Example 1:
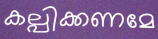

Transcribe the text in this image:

കല്പിക്കണമേ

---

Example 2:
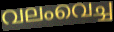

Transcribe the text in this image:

വലംവെച്ച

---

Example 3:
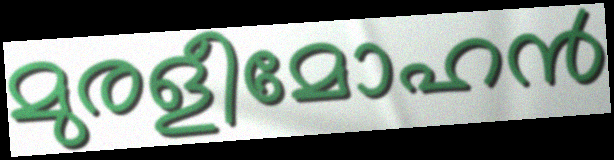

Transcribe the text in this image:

മുരളീമോഹൻ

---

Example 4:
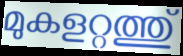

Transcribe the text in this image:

മുകളറ്റത്തു്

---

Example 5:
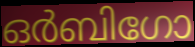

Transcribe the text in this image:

ഒർബിഗോ